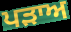
ਪਡ਼ਾਅ